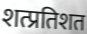
शत्प्रतिशत